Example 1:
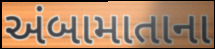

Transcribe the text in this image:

અંબામાતાના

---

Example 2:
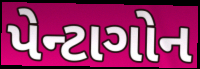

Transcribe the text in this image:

પેન્ટાગોન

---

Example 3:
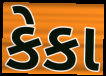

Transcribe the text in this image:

કેકા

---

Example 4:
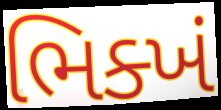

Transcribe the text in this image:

ભિક્ખં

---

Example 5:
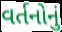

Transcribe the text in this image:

વર્તનોનું